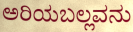
ಅರಿಯಬಲ್ಲವನು